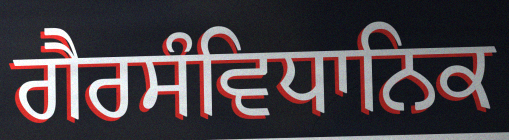
ਗੈਰਸੰਵਿਧਾਨਿਕ